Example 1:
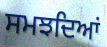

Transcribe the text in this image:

ਸਮਝਦਿਆਂ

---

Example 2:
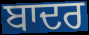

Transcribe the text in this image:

ਬਾਦਰ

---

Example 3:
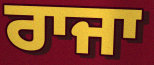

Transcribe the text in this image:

ਰਾਜਾ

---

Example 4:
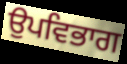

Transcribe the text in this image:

ਉਪਵਿਭਾਗ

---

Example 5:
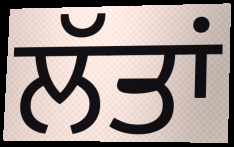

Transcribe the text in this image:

ਲੱਤਾਂ